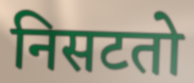
निसटतो